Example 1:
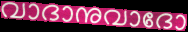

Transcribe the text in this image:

വാദാനുവാദോ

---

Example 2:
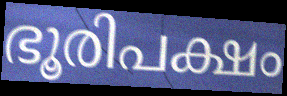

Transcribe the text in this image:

ഭൂരിപക്ഷം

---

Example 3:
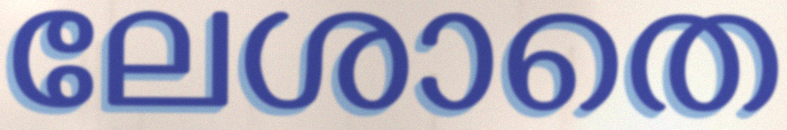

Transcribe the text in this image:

ലേശാതെ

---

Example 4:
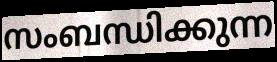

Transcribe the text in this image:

സംബന്ധിക്കുന്ന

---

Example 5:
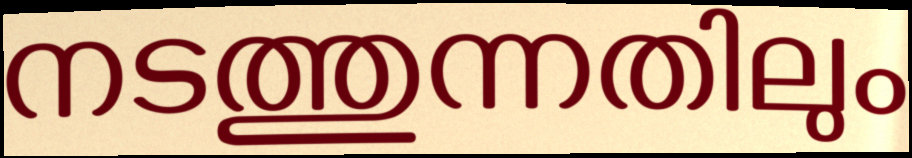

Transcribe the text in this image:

നടത്തുന്നതിലും